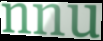
nnu